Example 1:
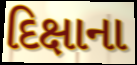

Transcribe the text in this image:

દિક્ષાના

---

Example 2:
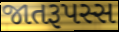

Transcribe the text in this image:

જાતરૂપસ્સ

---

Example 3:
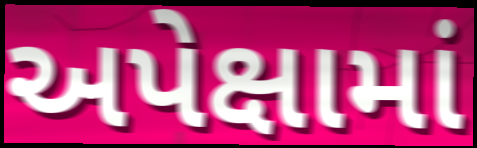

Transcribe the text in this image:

અપેક્ષામાં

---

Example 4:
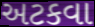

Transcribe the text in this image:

અટકવા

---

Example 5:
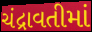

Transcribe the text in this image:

ચંદ્રાવતીમાં